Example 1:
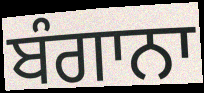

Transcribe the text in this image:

ਬੰਗਾਨਾ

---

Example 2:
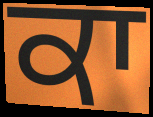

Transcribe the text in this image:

ਕਾ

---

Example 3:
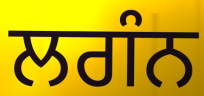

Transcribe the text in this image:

ਲਗੰਨ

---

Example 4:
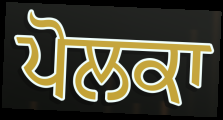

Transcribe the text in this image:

ਪੋਲਕਾ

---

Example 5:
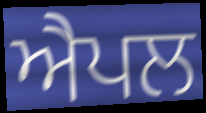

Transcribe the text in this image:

ਐਪਲ